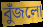
বুঁজলো